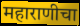
महाराणीचा